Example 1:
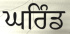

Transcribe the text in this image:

ਘਰਿੰਡ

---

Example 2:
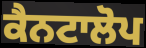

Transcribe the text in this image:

ਕੈਨਟਾਲੋਪ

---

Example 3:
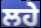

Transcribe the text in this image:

ਲਹੇ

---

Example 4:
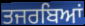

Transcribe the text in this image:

ਤਜਰਬਿਆਂ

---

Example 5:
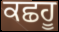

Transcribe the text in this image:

ਕਛਹੂ